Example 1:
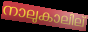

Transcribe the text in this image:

നാലുകാലില്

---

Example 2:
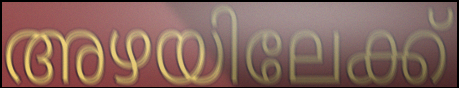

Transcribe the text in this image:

അഴയിലേക്ക്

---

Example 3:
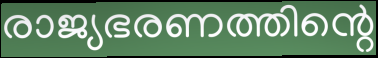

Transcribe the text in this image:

രാജ്യഭരണത്തിന്റെ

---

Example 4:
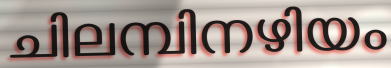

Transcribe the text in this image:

ചിലമ്പിനഴിയം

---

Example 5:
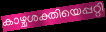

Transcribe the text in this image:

കാഴ്ചശക്തിയെപ്പറ്റി